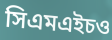
সিএমএইচও